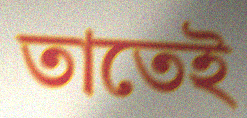
তাতেই